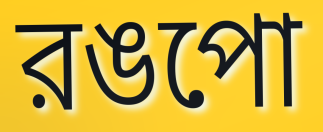
রঙপো